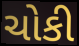
ચોકી